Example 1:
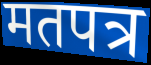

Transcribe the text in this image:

मतपत्र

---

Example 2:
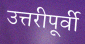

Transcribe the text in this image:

उत्तरीपूर्वी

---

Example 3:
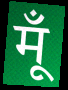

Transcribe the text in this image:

मूँ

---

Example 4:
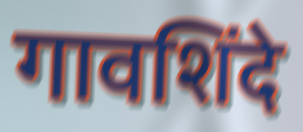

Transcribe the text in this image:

गावशिंदे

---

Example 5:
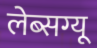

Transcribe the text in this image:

लेब्सग्यू